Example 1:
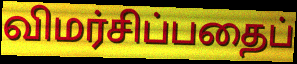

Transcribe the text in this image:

விமர்சிப்பதைப்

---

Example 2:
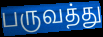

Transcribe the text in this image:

பருவத்து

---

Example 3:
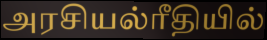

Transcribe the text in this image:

அரசியல்ரீதியில்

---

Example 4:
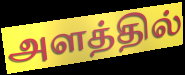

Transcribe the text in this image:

அளத்தில்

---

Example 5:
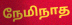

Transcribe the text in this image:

நேமிநாத